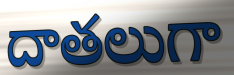
దాతలుగా